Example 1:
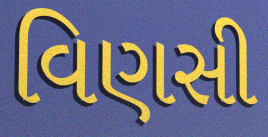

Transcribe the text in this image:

વિણસી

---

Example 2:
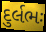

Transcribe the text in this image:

દુર્લભઃ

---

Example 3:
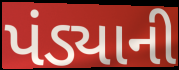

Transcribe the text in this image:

પંડ્યાની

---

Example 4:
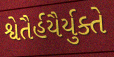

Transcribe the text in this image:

શ્વેતૈર્હયૈર્યુક્તે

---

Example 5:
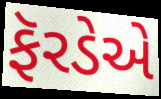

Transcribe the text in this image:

ફૅરડેએ